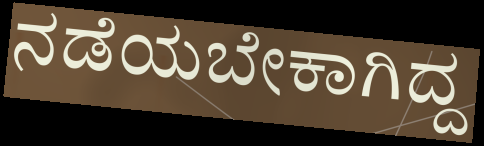
ನಡೆಯಬೇಕಾಗಿದ್ದ